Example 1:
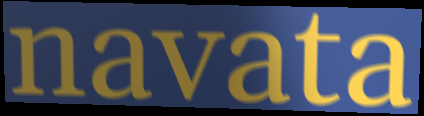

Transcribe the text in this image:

navata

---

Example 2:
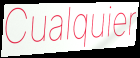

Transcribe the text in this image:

Cualquier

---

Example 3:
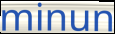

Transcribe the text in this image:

minun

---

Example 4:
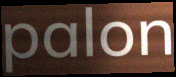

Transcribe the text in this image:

palon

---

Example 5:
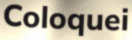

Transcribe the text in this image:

Coloquei